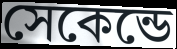
সেকেন্ডে